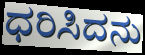
ಧರಿಸಿದನು